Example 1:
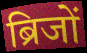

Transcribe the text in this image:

ब्रिजों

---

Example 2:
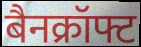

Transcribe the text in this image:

बैनक्रॉफ्ट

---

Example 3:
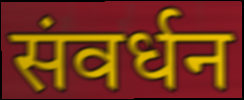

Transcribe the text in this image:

संवर्धन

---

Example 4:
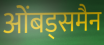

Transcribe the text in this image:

ओंबड्समैन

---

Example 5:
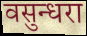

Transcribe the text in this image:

वसुन्धरा